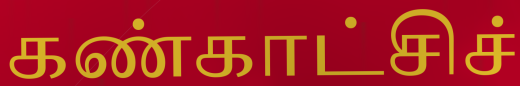
கண்காட்சிச்